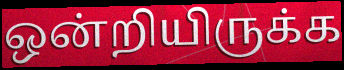
ஒன்றியிருக்க